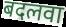
बदलवा